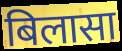
बिलासा